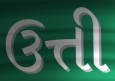
ઉત્તી